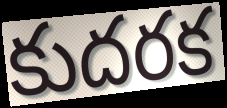
కుదరక